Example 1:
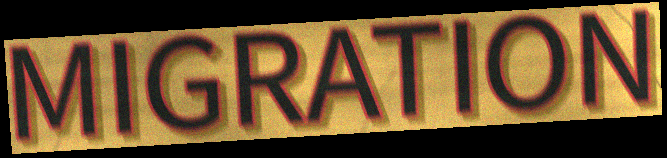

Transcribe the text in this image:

MIGRATION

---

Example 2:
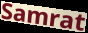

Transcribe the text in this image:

Samrat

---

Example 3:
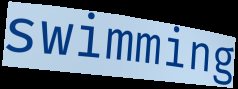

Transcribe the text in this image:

swimming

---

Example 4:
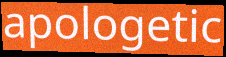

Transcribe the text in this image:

apologetic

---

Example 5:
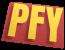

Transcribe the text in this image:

PFY